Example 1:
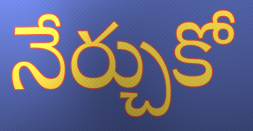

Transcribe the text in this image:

నేర్చుకో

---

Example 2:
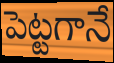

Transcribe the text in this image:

పెట్టగానే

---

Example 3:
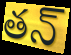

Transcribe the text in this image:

తన్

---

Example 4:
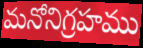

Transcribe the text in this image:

మనోనిగ్రహము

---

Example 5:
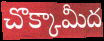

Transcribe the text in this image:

చొక్కామీద